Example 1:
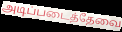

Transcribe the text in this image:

அடிப்படைத்தேவை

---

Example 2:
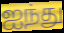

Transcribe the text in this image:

ஐந்து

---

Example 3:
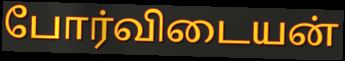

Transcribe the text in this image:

போர்விடையன்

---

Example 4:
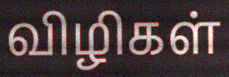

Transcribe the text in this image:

விழிகள்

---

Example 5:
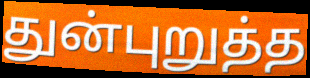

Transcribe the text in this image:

துன்புறுத்த